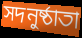
সদনুষ্ঠাতা